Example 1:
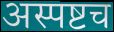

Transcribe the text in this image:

अस्पष्टच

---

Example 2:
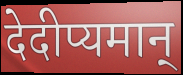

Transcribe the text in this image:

देदीप्यमान्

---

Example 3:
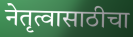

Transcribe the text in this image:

नेतृत्वासाठीचा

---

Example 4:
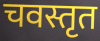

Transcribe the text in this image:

चवस्तृत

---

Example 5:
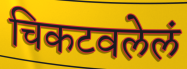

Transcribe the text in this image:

चिकटवलेलं